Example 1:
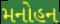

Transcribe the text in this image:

મનોહન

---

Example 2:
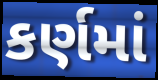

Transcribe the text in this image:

કર્ણમાં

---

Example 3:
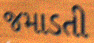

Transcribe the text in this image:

જમાડતી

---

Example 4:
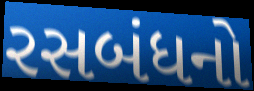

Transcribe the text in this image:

રસબંધનો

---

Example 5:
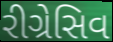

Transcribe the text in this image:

રીગ્રેસિવ